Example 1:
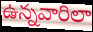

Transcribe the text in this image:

ఉన్నవారిలా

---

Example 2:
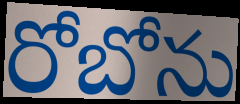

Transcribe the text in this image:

రోబోను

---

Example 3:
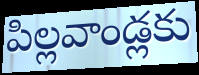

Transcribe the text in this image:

పిల్లవాండ్లకు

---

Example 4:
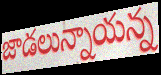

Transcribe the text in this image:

జాడలున్నాయన్న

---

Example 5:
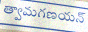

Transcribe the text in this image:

త్వామగణయన్